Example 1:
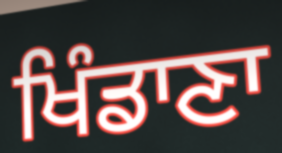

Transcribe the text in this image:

ਖਿੰਡਾਣਾ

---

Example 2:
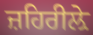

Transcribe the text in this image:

ਜ਼ਹਿਰੀਲ਼ੇ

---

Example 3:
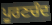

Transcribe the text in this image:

ਪੂਰਣਚੰਦ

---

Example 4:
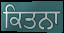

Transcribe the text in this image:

ਕਿਤਨਾ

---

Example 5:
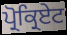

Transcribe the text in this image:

ਪ੍ਰੋਕ੍ਰਿਏਟ